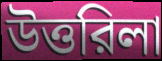
উত্তরিলা